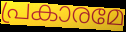
പ്രകാരമേ